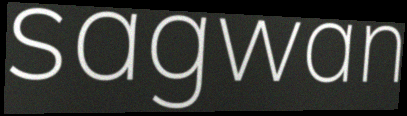
sagwan